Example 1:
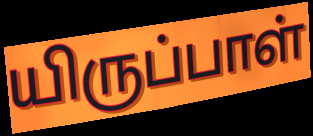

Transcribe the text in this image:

யிருப்பாள்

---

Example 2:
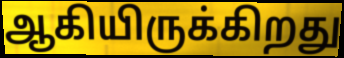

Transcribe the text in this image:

ஆகியிருக்கிறது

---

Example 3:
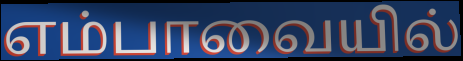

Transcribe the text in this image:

எம்பாவையில்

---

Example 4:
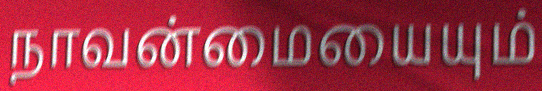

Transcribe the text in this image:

நாவன்மையையும்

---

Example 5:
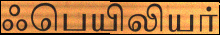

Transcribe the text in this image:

ஃபெயிலியர்